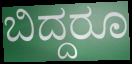
ಬಿದ್ದರೂ